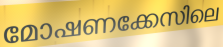
മോഷണക്കേസിലെ